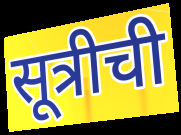
सूत्रीची